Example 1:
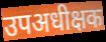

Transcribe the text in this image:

उपअधीक्षक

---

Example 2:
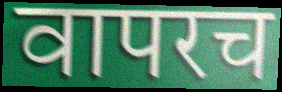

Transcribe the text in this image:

वापरच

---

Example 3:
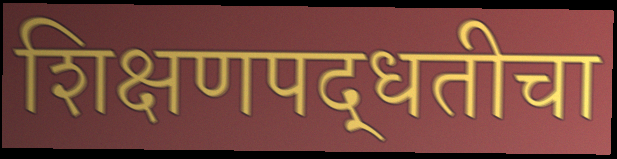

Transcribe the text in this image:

शिक्षणपद्धतीचा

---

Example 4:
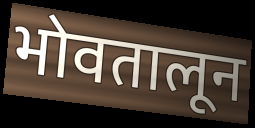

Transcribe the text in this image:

भोवतालून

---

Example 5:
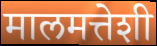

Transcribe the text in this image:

मालमत्तेशी